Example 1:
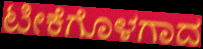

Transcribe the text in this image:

ಟೀಕೆಗೊಳಗಾದ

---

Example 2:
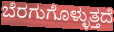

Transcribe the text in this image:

ಬೆರಗುಗೊಳ್ಳುತ್ತದೆ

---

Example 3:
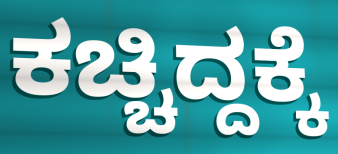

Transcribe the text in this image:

ಕಚ್ಚಿದ್ದಕ್ಕೆ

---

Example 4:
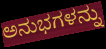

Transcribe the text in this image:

ಅನುಭಗಳನ್ನು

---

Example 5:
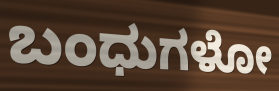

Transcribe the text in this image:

ಬಂಧುಗಳೋ